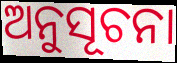
ଅନୁସୂଚନା